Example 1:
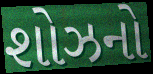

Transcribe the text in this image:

શોઝનો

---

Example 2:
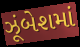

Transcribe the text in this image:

ઝૂંબેશમાં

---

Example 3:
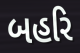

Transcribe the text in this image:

બહરિ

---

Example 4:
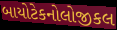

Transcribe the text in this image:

બાયોટેકનોલોજીકલ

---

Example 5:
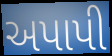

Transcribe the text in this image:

અપાપી